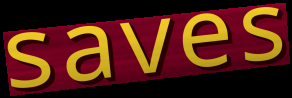
saves